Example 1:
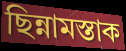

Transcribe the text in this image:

ছিন্নামস্তাক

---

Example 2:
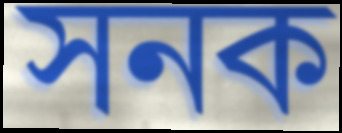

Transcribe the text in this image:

সনক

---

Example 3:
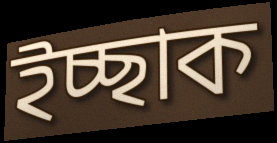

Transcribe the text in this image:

ইচ্ছাক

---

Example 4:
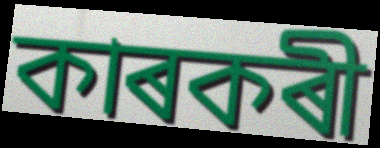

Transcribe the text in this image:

কাৰকৰী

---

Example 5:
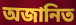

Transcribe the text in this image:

অজানিত